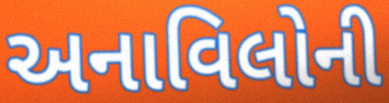
અનાવિલોની